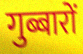
गुब्बारों